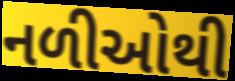
નળીઓથી